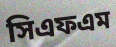
সিএফএম